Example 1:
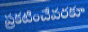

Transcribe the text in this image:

ప్రకటించేవరకూ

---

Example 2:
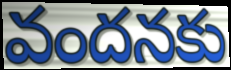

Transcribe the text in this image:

వందనకు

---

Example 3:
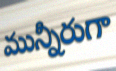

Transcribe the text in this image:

మున్నీరుగా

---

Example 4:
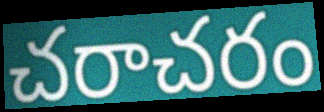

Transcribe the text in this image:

చరాచరం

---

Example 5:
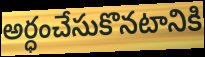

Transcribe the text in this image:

అర్ధంచేసుకొనటానికి